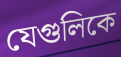
যেগুলিকে